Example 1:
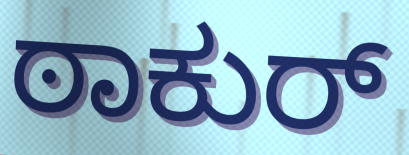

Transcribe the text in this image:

ಠಾಕುರ್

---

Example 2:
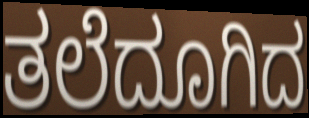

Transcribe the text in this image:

ತಲೆದೂಗಿದ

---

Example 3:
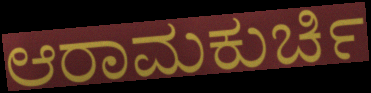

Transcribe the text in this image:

ಆರಾಮಕುರ್ಚಿ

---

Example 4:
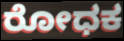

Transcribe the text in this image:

ರೋಧಕ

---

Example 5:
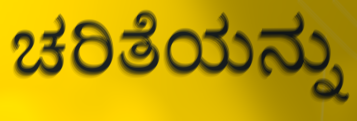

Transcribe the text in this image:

ಚರಿತೆಯನ್ನು